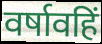
वर्षावहिं